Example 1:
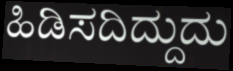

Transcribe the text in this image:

ಹಿಡಿಸದಿದ್ದುದು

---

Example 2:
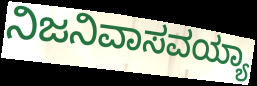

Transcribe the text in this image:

ನಿಜನಿವಾಸವಯ್ಯಾ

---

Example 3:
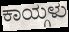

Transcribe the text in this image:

ಕಾಯ್ಗಳು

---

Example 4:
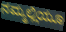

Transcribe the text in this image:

ನಮ್ಮಲ್ಲಿಯೂ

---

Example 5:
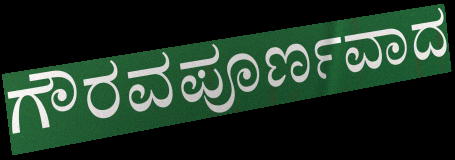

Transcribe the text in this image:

ಗೌರವಪೂರ್ಣವಾದ